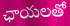
ఛాయలతో